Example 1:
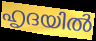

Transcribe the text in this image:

ഹൃദയിൽ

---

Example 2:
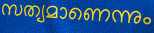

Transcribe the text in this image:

സത്യമാണെന്നും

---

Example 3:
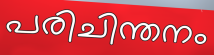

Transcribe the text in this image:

പരിചിന്തനം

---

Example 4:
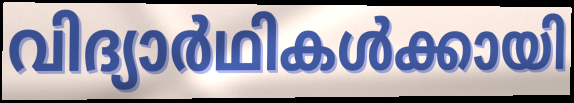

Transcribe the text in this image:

വിദ്യാർഥികൾക്കായി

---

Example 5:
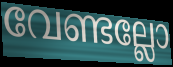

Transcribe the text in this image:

വേണ്ടല്ലോ